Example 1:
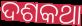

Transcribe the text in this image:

ଦଶକଥା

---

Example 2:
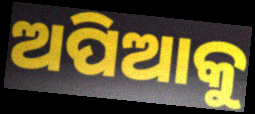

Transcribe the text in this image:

ଅପିଆକୁ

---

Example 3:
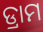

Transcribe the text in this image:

ଡ୍ରାମ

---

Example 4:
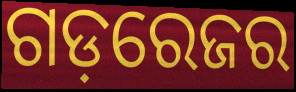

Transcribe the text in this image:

ଗଡ଼ରେଜର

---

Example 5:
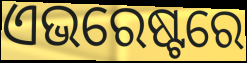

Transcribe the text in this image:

ଏଭରେଷ୍ଟରେ